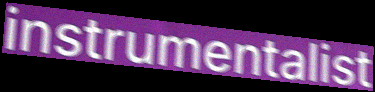
instrumentalist